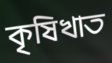
কৃষিখাত